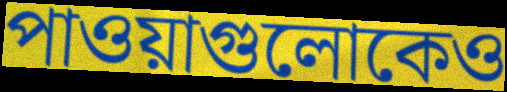
পাওয়াগুলোকেও